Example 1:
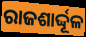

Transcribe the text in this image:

ରାଜଶାର୍ଦ୍ଦୂଳ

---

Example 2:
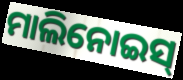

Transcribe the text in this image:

ମାଲିନୋଇସ୍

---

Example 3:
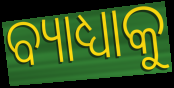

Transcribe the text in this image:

ବ୍ୟାଧ୍ୟାକୁ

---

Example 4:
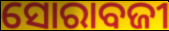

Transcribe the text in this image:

ସୋରାବଜୀ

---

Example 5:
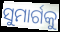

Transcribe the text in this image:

ସୁମାର୍ଗକୁ